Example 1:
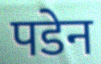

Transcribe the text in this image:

पडेन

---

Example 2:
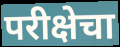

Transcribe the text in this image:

परीक्षेचा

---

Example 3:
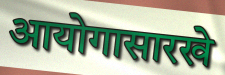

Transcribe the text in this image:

आयोगासारखे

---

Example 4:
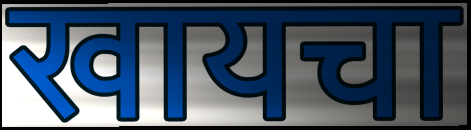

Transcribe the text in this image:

खायचा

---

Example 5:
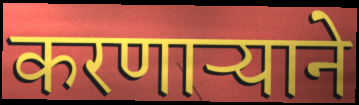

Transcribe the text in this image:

करणाऱ्याने